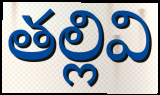
తల్లివి